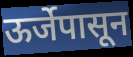
ऊर्जेपासून